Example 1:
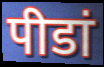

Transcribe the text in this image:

पीडां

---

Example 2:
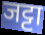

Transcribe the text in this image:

जट्टा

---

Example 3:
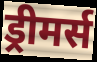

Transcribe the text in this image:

ड्रीमर्स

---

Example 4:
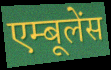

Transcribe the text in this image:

एम्बूलेंस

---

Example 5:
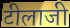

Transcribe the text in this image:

टीलाजी